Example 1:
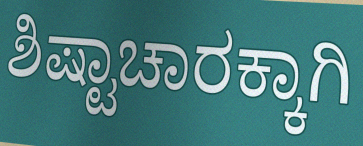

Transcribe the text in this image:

ಶಿಷ್ಟಾಚಾರಕ್ಕಾಗಿ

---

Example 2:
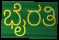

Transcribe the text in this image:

ಭೈರತಿ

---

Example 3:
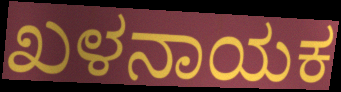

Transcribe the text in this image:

ಖಳನಾಯಕ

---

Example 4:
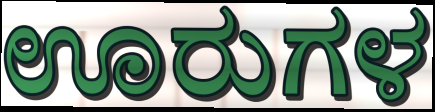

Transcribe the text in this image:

ಊರುಗಳ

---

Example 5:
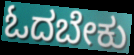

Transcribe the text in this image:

ಓದಬೇಕು